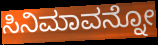
ಸಿನಿಮಾವನ್ನೋ